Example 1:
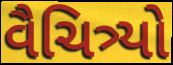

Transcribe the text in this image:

વૈચિત્ર્યો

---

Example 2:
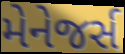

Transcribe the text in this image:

મેનેજર્સ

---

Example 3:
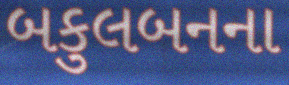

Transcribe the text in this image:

બકુલબનના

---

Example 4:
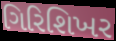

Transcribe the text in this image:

ગિરિશિખર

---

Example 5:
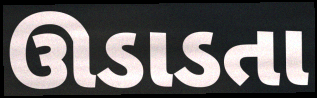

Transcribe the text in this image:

ઊડાડતા